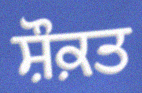
ਸ਼ੌਕ਼ਤ